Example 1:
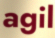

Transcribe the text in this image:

agil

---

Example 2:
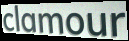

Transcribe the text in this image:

clamour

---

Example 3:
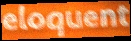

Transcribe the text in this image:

eloquent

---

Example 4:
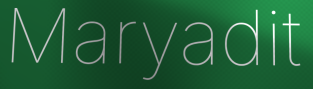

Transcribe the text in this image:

Maryadit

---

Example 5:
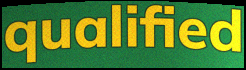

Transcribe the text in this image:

qualified